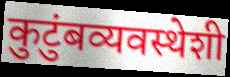
कुटुंबव्यवस्थेशी